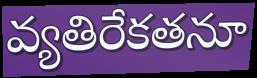
వ్యతిరేకతనూ